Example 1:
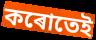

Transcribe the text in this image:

কৰোতেই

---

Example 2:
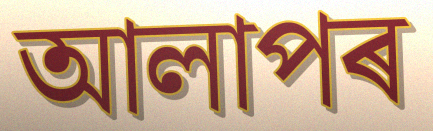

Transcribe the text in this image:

আলাপৰ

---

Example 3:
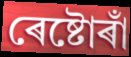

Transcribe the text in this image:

ৰেষ্টোৰাঁ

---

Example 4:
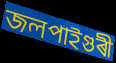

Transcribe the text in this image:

জলপাইগুৰী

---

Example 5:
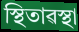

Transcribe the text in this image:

স্থিতাৱস্থা